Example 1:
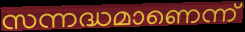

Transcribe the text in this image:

സന്നദ്ധമാണെന്ന്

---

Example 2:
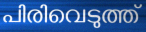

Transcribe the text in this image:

പിരിവെടുത്ത്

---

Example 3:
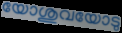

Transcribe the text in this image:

യോശുവയോടു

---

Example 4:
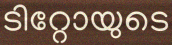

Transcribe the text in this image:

ടിറ്റോയുടെ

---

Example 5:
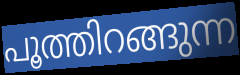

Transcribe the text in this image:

പൂത്തിറങ്ങുന്ന